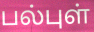
பல்புள்